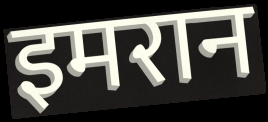
इमरान